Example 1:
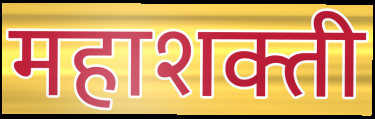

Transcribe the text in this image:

महाशक्‍ती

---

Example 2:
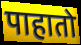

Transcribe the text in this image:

पाहातो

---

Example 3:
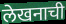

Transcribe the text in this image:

लेखनाची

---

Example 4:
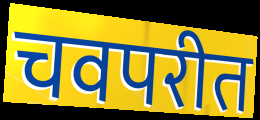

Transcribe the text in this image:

चवपरीत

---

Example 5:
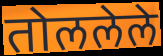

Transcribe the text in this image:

तोललेले